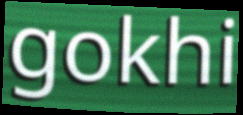
gokhi